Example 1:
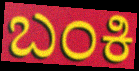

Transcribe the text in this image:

ಬಂಕಿ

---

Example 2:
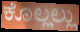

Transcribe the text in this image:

ಕೊಲ್ಲಲ್ಲು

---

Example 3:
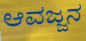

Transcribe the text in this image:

ಆವಜ್ಜನ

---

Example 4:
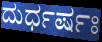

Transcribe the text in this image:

ದುರ್ಧರ್ಷಃ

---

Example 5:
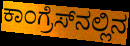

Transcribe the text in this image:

ಕಾಂಗ್ರೆಸ್‌ನಲ್ಲಿನ